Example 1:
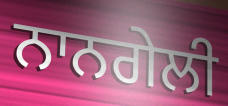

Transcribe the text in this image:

ਨਾਨਗੇਲੀ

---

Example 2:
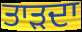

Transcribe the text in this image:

ਤਾੜਦਾ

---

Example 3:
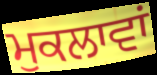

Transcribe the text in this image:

ਮੁਕਲਾਵਾਂ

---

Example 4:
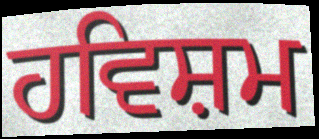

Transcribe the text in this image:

ਹਵਿਸ਼ਮ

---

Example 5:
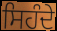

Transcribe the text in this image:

ਸਿਹੰਦੇ